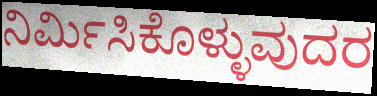
ನಿರ್ಮಿಸಿಕೊಳ್ಳುವುದರ